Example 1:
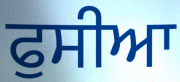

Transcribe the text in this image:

ਫੁਸੀਆ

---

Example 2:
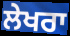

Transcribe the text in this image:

ਲੇਖਰਾ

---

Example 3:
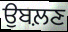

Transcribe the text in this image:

ਉਬਲ਼ਣ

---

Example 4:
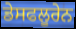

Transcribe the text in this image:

ਡੇਸਫਲੂਰੇਨ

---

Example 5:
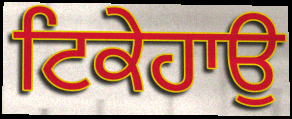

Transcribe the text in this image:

ਟਿਕੇਹਾਉ